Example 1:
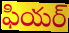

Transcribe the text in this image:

ఫియర్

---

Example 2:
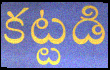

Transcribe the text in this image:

కట్టడి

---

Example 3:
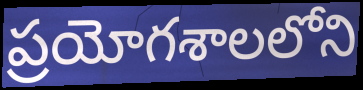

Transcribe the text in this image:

ప్రయోగశాలలోని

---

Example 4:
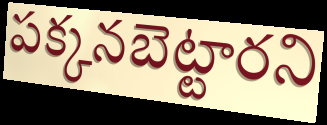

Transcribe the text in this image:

పక్కనబెట్టారని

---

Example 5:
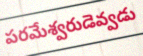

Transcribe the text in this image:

పరమేశ్వరుడెవ్వడు